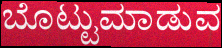
ಬೊಟ್ಟುಮಾಡುವ